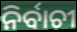
ନିର୍ବାଚୀ